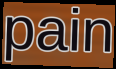
pain